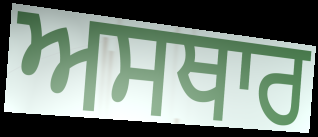
ਅਸਥਾਰ